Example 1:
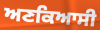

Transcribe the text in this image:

ਅਣਕਿਆਸੀ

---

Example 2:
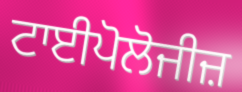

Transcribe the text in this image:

ਟਾਈਪੋਲੋਜੀਜ਼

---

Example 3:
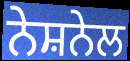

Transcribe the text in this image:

ਨੇਸ਼ਨੇਲ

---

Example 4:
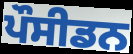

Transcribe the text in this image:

ਪੌਸੀਡਨ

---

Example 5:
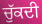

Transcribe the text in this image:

ਚੁੱਕਦੀ